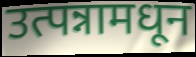
उत्पन्नामधून